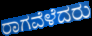
ರಾಗವೆಳೆದರು